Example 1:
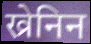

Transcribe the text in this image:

ख्रेनिन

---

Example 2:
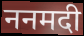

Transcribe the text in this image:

ननमदी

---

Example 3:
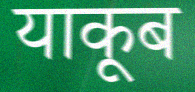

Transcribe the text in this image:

याकूब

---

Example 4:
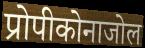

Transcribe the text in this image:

प्रोपीकोनाजोल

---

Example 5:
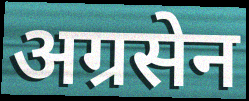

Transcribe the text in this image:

अग्रसेन